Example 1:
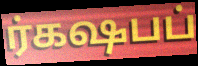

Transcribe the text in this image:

ர்கஷபப்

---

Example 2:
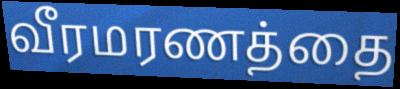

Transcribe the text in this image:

வீரமரணத்தை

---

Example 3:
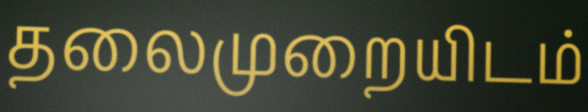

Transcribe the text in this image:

தலைமுறையிடம்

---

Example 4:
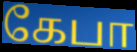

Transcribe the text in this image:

கேபா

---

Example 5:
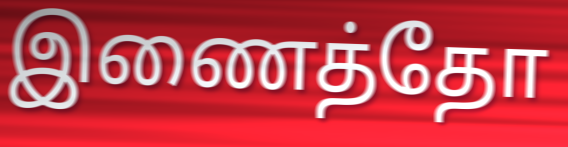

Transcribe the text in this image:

இணைத்தோ